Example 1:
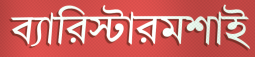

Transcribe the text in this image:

ব্যারিস্টারমশাই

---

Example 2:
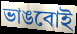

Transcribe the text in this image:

ভাঙবোই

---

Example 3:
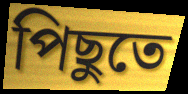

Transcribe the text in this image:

পিছুতে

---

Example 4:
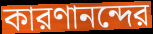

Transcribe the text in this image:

কারণানন্দের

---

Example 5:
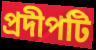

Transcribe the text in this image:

প্রদীপটি